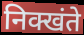
निक्खंते